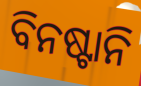
ବିନଷ୍ଟାନି